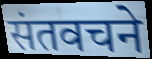
संतवचने